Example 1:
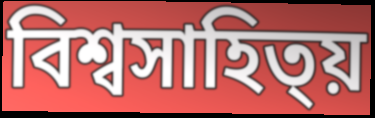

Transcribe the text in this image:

বিশ্বসাহিত্য়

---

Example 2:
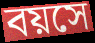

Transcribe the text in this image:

বয়সে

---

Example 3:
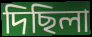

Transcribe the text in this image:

দিছিলা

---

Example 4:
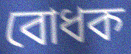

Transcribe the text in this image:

বোধক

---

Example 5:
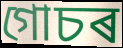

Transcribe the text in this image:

গোচৰ